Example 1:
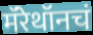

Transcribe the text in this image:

मॅरेथॉनचं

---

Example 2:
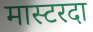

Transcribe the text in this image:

मास्टरदा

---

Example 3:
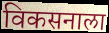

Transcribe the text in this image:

विकसनाला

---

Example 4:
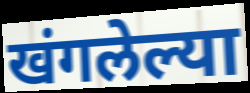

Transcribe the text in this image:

खंगलेल्या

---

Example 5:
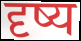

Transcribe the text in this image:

दृष्य